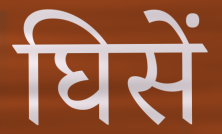
घिसें